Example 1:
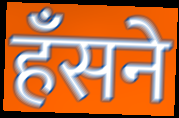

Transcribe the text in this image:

हँसने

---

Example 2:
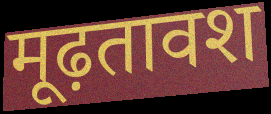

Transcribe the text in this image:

मूढ़तावश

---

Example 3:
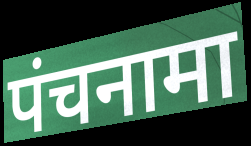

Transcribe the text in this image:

पंचनामा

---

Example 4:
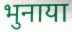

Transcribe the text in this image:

भुनाया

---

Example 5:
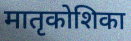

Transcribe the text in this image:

मातृकोशिका